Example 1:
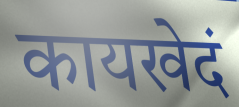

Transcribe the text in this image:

कायखेदं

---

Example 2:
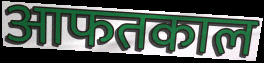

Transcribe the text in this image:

आफतकाल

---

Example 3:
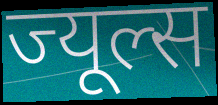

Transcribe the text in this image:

ज्यूल्स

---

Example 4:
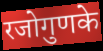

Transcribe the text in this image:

रजोगुणके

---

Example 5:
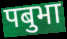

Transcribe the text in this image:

पबुभा